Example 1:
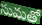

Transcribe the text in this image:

సుమతో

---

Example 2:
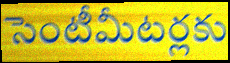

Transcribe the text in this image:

సెంటీమీటర్లకు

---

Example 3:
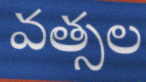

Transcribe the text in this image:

వత్సల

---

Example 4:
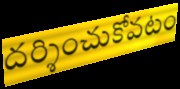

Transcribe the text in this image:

దర్శించుకోవటం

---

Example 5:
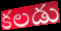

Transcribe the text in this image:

కలడు